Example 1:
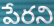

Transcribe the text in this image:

పేరని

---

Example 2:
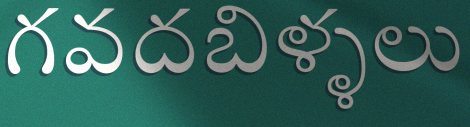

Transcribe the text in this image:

గవదబిళ్ళలు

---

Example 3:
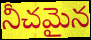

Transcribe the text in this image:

నీచమైన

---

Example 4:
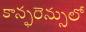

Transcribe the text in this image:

కాన్ఫరెన్సులో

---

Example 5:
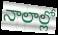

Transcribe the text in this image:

నాలాల్లో